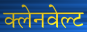
क्लेनवेल्ट